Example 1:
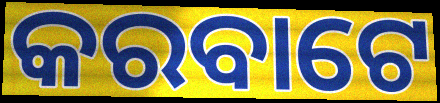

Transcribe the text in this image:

କରବାଟେ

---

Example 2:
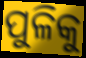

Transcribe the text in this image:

ପୁଳିକୁ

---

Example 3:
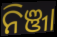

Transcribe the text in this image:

ନିଞ୍ଜା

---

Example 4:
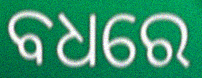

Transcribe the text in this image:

ବଧରେ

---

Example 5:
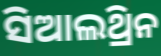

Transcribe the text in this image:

ସିଆଲଥ୍ରିନ